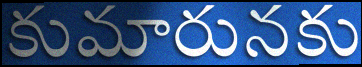
కుమారునకు